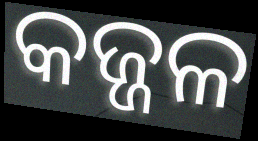
କଜ୍ଜଳ